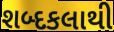
શબ્દકલાથી